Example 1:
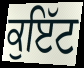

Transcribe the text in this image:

ਕੁਇੱਟ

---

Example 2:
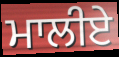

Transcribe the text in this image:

ਮਾਲੀਏ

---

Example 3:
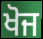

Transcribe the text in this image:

ਖੋਜ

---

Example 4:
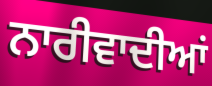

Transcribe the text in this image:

ਨਾਰੀਵਾਦੀਆਂ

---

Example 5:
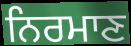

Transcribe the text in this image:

ਨਿਰਮਾਣ